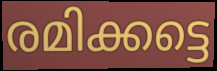
രമിക്കട്ടെ